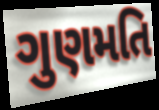
ગુણમતિ